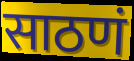
साठणं